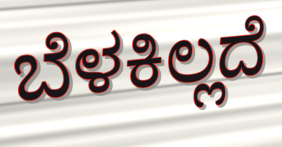
ಬೆಳಕಿಲ್ಲದೆ